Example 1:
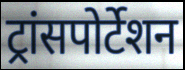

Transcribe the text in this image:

ट्रांसपोर्टेशन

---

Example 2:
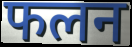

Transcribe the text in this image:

फलन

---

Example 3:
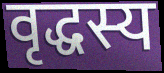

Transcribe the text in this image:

वृद्धस्य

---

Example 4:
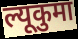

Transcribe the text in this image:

ल्यूकुमा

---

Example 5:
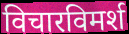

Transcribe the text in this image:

विचारविमर्श